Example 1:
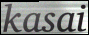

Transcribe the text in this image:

kasai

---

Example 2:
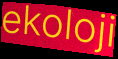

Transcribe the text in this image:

ekoloji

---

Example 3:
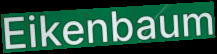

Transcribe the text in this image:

Eikenbaum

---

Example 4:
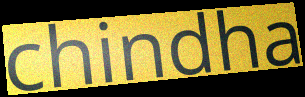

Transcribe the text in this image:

chindha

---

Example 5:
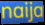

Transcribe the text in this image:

naija